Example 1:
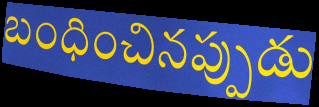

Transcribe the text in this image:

బంధించినప్పుడు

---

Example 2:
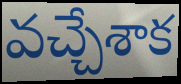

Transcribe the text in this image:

వచ్చేశాక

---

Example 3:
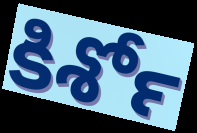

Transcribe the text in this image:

కిశోర్‍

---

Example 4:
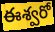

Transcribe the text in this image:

ఈశ్వరో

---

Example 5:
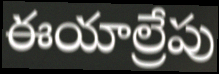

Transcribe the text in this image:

ఈయాల్రేపు